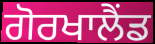
ਗੋਰਖਾਲੈਂਡ